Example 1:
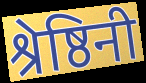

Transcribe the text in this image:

श्रेष्ठिनी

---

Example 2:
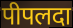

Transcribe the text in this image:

पीपलदा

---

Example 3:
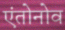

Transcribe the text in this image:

एंतोनोव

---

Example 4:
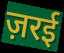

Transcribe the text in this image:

ज़रई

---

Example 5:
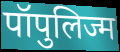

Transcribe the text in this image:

पॉपुलिज्म